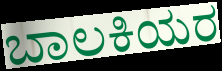
ಬಾಲಕಿಯರ